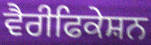
ਵੈਰੀਫਿਕੇਸ਼ਨ